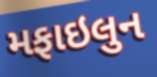
મફાઇલુન